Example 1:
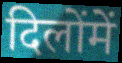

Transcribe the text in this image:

दिलोंमें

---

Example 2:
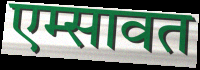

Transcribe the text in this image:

एम्सावत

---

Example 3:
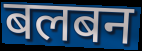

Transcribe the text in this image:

बलबन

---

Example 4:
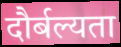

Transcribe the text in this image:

दौर्बल्यता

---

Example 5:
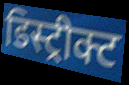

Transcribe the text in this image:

डिस्ट्रीक्ट